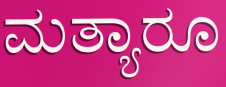
ಮತ್ಯಾರೂ